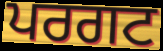
ਪਰਗਟ